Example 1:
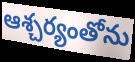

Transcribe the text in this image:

ఆశ్చర్యంతోను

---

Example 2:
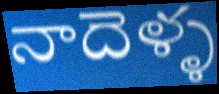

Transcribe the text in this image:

నాదెళ్ళ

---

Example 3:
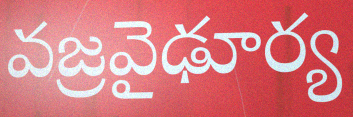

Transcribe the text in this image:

వజ్రవైఢూర్య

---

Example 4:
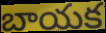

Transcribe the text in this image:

బాయక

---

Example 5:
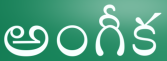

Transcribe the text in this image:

అంగీక